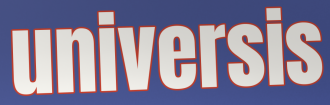
universis